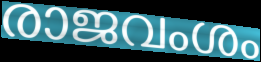
രാജവംശം